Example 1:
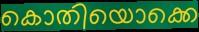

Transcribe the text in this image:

കൊതിയൊക്കെ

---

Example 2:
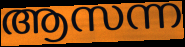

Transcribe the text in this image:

ആസന്ന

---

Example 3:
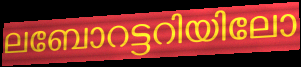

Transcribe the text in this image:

ലബോറട്ടറിയിലോ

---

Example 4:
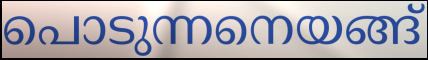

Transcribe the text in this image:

പൊടുന്നനെയങ്ങ്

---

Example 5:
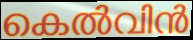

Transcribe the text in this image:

കെൽവിൻ